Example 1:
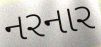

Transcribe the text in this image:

નરનાર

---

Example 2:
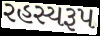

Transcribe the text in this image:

રહસ્યરૂપ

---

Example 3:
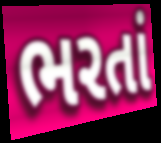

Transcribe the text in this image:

ભરતાં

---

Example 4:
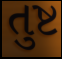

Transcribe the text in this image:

તુષ્ટ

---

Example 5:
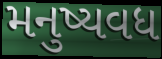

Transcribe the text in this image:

મનુષ્યવધ